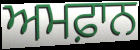
ਅਮਫ਼ਾਨ